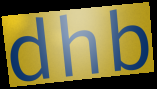
dhb